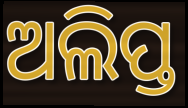
ଅଲିପ୍ତ